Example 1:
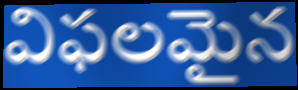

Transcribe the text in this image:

విఫలమైన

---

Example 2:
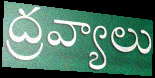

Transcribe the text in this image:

ద్రవ్యాలు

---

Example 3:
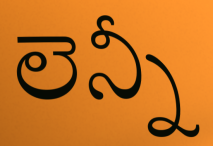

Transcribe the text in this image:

లెన్నీ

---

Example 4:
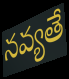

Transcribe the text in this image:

నవ్యతే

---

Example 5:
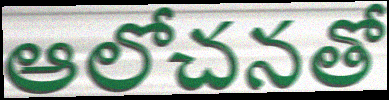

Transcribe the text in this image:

ఆలోచనతో